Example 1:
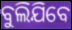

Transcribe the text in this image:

ବୁଲିଯିବେ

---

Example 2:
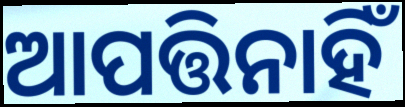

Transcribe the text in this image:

ଆପତ୍ତିନାହିଁ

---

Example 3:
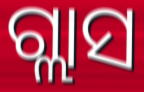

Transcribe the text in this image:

ଗ୍ଲାସ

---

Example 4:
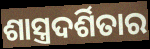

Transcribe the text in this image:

ଶାସ୍ତ୍ରଦର୍ଶିତାର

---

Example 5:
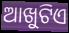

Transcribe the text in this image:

ଆଖୁଟିଏ